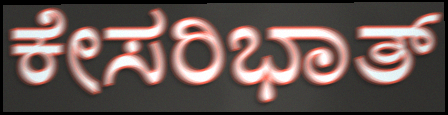
ಕೇಸರಿಭಾತ್